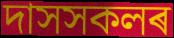
দাসসকলৰ